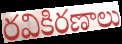
రవికిరణాలు